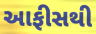
આફીસથી